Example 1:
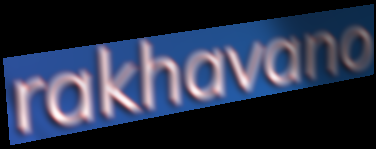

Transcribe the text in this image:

rakhavano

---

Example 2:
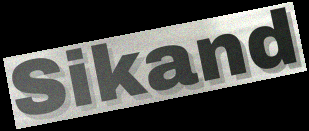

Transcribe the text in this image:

Sikand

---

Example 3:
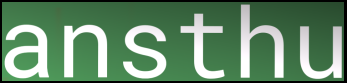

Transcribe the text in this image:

ansthu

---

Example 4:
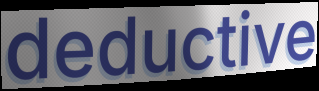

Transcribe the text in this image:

deductive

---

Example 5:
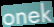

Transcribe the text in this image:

onek